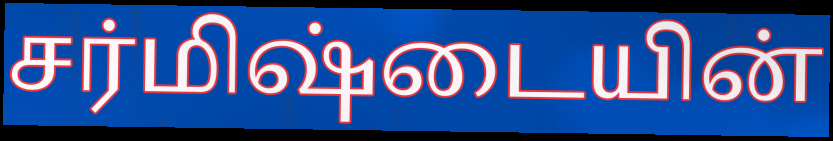
சர்மிஷ்டையின்